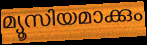
മ്യൂസിയമാക്കും